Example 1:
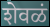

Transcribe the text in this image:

शेवळं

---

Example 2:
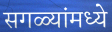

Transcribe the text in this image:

सगळ्यांमध्ये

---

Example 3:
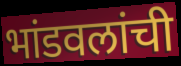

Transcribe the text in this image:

भांडवलांची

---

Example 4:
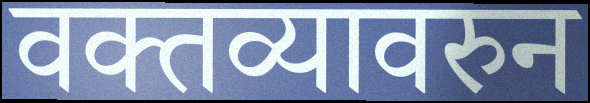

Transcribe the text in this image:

वक्तव्यावरुन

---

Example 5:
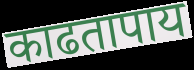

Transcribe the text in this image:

काढतापाय